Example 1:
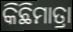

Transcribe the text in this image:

କିଛିମାତ୍ରା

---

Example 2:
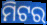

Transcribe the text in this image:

ମିଟର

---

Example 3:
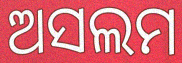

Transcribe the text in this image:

ଅସଲମ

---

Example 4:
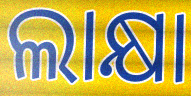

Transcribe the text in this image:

ଲାକ୍ଷା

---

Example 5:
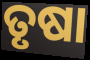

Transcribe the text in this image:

ତୃଷା